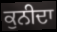
ਕੁਨੀਦਾ